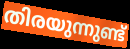
തിരയുന്നുണ്ട്